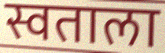
स्वताला